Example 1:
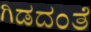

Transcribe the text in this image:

ಗಿಡದಂತೆ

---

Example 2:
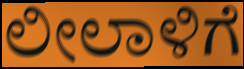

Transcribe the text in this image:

ಲೀಲಾಳಿಗೆ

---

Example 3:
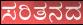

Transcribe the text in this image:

ಸರಿತನದ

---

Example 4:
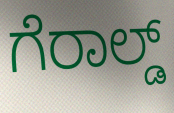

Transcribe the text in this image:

ಗೆರಾಲ್ಡ್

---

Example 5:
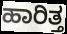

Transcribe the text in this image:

ಹಾರಿತ್ತ